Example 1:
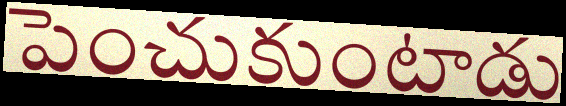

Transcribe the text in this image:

పెంచుకుంటాడు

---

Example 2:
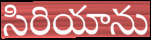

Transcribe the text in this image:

సిరియాను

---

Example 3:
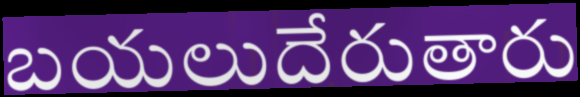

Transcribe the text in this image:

బయలుదేరుతారు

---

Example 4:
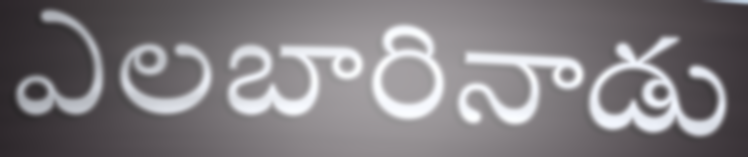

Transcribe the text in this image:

ఎలబారినాడు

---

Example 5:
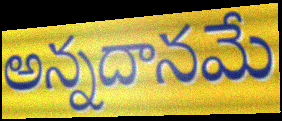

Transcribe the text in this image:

అన్నదానమే